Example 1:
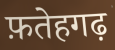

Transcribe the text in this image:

फ़तेहगढ़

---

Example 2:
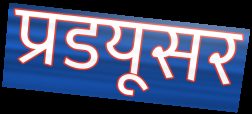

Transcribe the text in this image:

प्रडयूसर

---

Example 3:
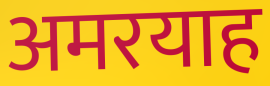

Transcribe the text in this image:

अमरयाह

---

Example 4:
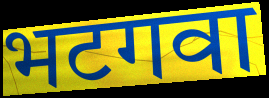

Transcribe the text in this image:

भटगवा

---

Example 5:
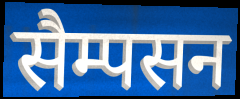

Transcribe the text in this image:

सैम्पसन